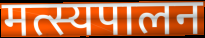
मत्स्यपालन